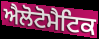
ਐਲੋਟੋਮੈਟਿਕ